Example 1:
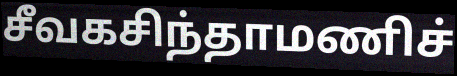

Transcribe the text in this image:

சீவகசிந்தாமணிச்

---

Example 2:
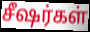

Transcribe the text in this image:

சீஷர்கள்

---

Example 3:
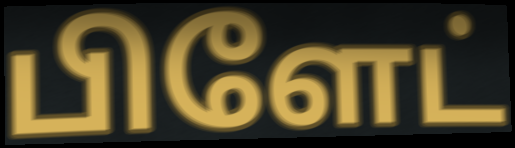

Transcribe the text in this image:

பிளேட்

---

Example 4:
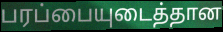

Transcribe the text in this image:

பரப்பையுடைத்தான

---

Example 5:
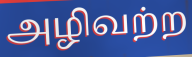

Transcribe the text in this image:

அழிவற்ற